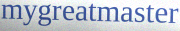
mygreatmaster